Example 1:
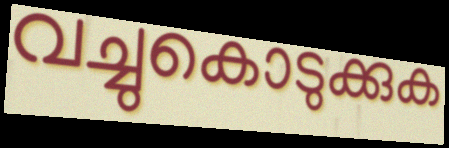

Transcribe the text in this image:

വച്ചുകൊടുക്കുക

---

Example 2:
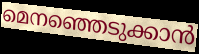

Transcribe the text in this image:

മെനഞ്ഞെടുക്കാൻ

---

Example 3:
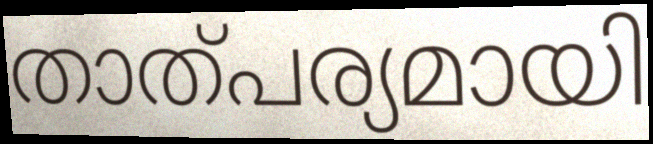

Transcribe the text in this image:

താത്പര്യമായി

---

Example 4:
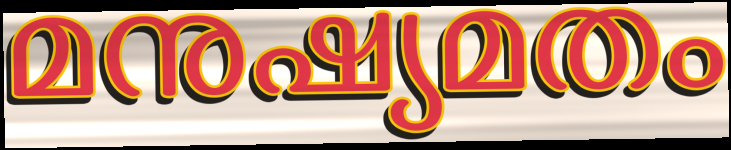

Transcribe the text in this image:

മനുഷ്യമതം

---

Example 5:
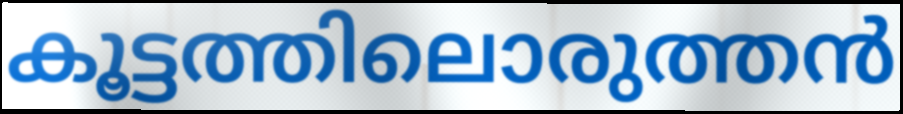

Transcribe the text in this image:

കൂട്ടത്തിലൊരുത്തൻ